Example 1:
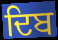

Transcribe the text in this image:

ਦਿਬ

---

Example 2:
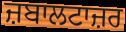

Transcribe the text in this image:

ਜ਼ਬਾਲਟਾਜ਼ਰ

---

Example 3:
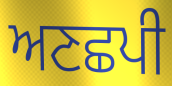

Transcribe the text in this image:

ਅਣਛਪੀ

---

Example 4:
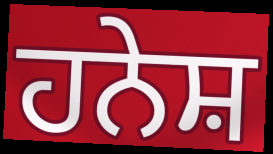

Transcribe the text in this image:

ਹਨੇਸ਼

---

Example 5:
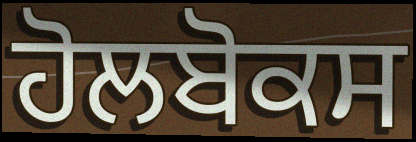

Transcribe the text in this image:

ਹੋਲਬੋਕਸ